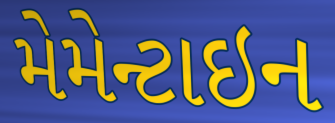
મેમેન્ટાઇન